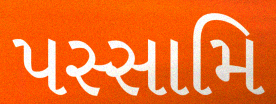
પસ્સામિ